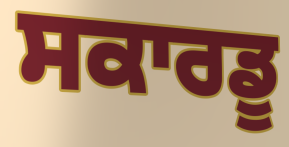
ਸਕਾਰਡੂ